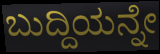
ಬುದ್ದಿಯನ್ನೇ